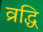
व्रद्धि